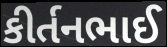
કીર્તનભાઈ